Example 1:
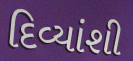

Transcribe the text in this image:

દિવ્યાંશી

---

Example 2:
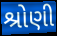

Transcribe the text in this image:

શ્રોણી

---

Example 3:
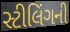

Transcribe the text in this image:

સ્ટીલિંગની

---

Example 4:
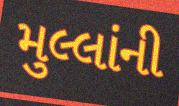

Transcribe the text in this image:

મુલ્લાંની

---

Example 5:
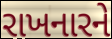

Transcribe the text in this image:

રાખનારને